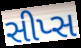
સીપ્સ